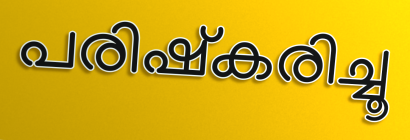
പരിഷ്കരിച്ചൂ